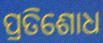
ପ୍ରତିଶୋଧ